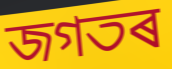
জগতৰ